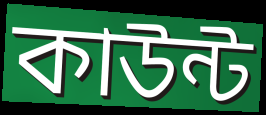
কাউন্ট